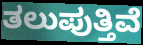
ತಲುಪುತ್ತಿವೆ